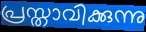
പ്രസ്താവിക്കുന്നു